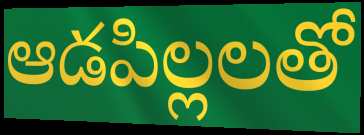
ఆడపిల్లలతో